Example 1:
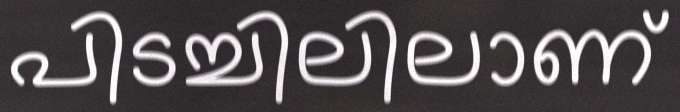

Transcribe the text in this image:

പിടച്ചിലിലാണ്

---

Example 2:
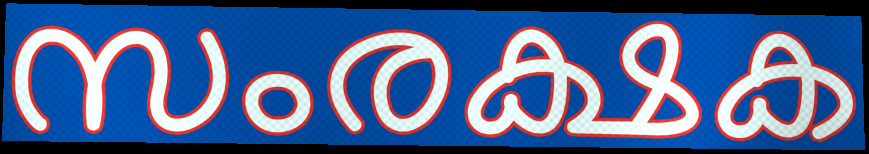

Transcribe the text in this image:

സംരക്ഷക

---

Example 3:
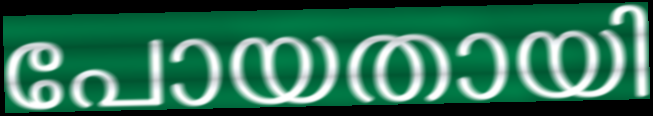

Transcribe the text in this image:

പോയതായി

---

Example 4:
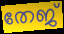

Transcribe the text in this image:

തേജ്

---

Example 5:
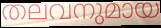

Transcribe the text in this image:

തലവനുമായ